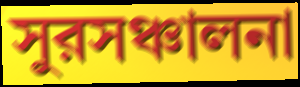
সুরসঞ্চালনা